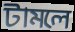
টামলে